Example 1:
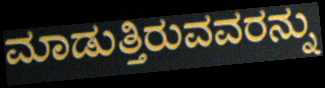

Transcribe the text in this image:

ಮಾಡುತ್ತಿರುವವರನ್ನು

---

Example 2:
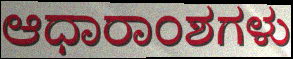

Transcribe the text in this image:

ಆಧಾರಾಂಶಗಳು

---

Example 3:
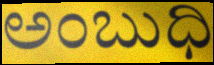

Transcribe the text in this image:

ಅಂಬುಧಿ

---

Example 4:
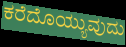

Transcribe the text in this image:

ಕರೆದೊಯ್ಯುವುದು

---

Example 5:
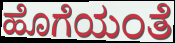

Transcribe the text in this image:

ಹೊಗೆಯಂತೆ